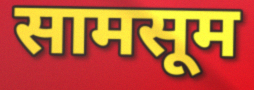
सामसूम